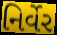
નિર્વેર